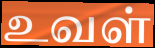
உவள்